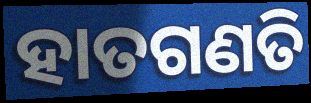
ହାତଗଣତି